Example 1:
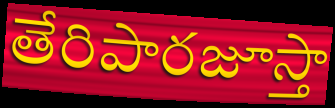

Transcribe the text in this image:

తేరిపారజూస్తా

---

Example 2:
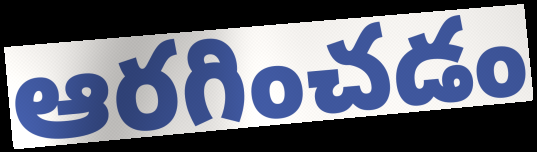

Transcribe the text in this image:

ఆరగించడం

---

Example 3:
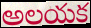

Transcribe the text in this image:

అలయక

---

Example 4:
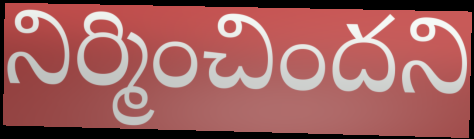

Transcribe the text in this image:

నిర్మించిందని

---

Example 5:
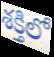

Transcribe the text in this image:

శక్తిలో